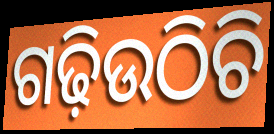
ଗଢ଼ିଉଠିଚି